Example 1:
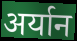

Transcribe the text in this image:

अर्यान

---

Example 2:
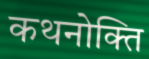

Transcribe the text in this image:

कथनोक्ति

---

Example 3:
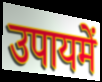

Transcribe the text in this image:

उपायमें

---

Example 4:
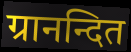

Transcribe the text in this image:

ग्रानन्दित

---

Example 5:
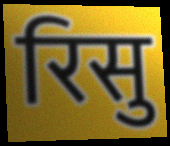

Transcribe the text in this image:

रिसु